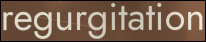
regurgitation